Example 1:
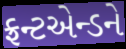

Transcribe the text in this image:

ફ્રન્ટએન્ડને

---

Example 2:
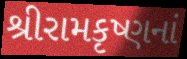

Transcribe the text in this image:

શ્રીરામકૃષ્ણનાં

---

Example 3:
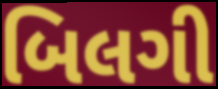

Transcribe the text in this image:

બિલગી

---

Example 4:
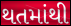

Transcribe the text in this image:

થતમાંથી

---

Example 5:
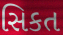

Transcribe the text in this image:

સિકત